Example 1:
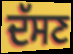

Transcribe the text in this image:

ਦੱਸਣ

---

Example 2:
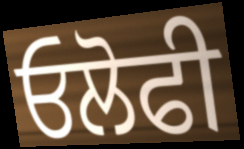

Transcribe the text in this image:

ਓਲੋਫੀ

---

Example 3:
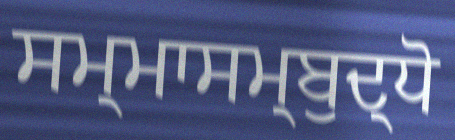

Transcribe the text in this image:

ਸਮ੍ਮਾਸਮ੍ਬੁਦ੍ਧੋ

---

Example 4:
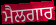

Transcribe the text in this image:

ਮੈਲਗਾਰ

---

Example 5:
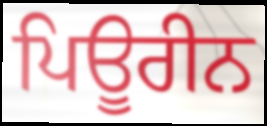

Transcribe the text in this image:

ਪਿਊਰੀਨ